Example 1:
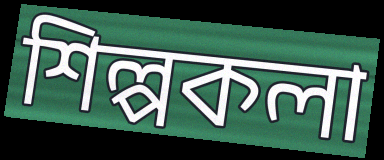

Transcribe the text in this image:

শিল্পকলা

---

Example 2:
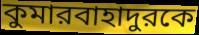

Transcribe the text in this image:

কুমারবাহাদুরকে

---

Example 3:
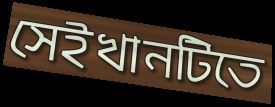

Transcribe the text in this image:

সেইখানটিতে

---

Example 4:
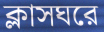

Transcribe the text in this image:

ক্লাসঘরে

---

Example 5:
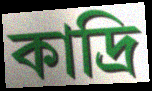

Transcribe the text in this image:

কাদ্রি